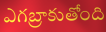
ఎగబ్రాకుతోంది